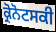
ਕ੍ਰੋਨੋਟਸਕੀ